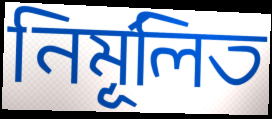
নির্মূলিত